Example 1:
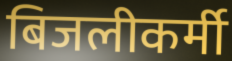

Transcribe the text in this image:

बिजलीकर्मी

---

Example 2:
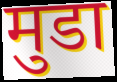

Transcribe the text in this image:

मुडा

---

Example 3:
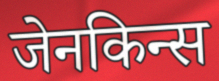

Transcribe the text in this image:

जेनकिन्स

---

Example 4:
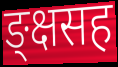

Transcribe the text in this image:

ङ्क्षसह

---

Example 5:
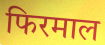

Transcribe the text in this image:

फिरमाल